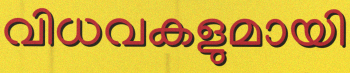
വിധവകളുമായി